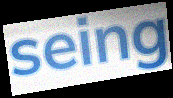
seing